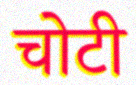
चोटी